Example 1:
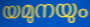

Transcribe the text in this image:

യമുനയും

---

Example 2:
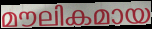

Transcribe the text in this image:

മൗലികമായ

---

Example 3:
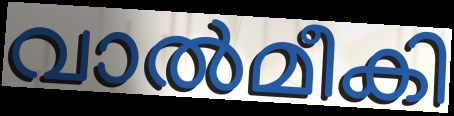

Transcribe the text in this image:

വാൽമീകി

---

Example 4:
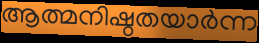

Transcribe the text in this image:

ആത്മനിഷ്ഠതയാർന്ന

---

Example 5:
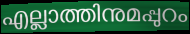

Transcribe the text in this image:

എല്ലാത്തിനുമപ്പുറം